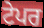
ਟੇਪਰ